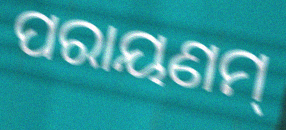
ପରାୟଣମ୍